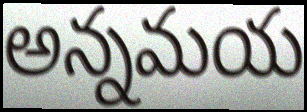
అన్నమయ